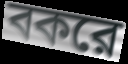
বকরে